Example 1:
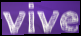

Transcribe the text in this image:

vive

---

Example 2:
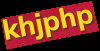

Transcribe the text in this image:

khjphp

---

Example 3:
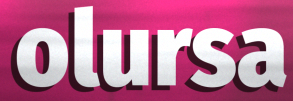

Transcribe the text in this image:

olursa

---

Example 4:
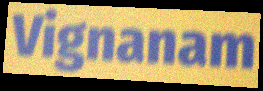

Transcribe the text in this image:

Vignanam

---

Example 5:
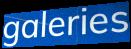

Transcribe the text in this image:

galeries